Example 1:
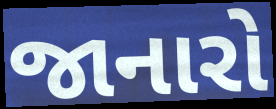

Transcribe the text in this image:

જાનારો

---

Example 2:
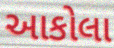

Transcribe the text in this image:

આકોલા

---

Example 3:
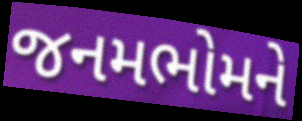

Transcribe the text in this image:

જનમભોમને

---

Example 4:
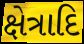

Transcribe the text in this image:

ક્ષેત્રાદિ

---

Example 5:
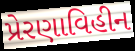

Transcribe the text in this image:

પ્રેરણાવિહીન